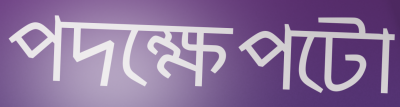
পদক্ষেপটো